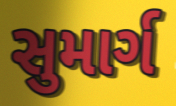
સુમાર્ગ